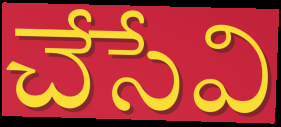
చేసేవి